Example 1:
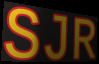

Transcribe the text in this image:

SJR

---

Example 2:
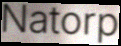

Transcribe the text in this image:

Natorp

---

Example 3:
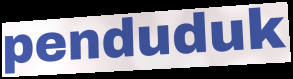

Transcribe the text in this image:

penduduk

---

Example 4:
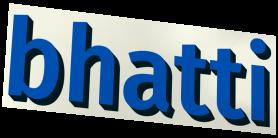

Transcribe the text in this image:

bhatti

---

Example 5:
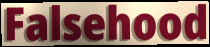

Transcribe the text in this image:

Falsehood